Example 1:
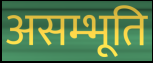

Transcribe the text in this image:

असम्भूति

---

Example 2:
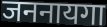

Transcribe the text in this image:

जननायगा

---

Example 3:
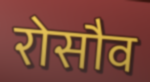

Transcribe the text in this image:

रोसौव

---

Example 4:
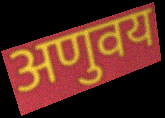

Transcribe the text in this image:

अणुवय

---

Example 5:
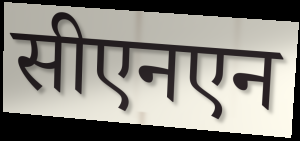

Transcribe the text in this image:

सीएनएन